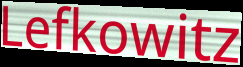
Lefkowitz